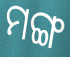
ମଙ୍ଗ